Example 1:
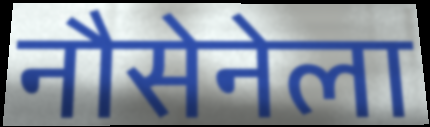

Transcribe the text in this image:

नौसेनेला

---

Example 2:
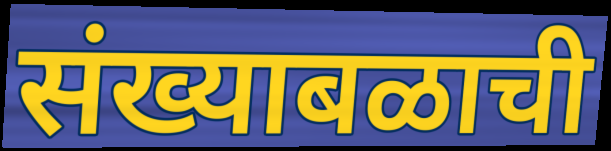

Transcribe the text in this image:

संख्याबळाची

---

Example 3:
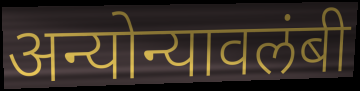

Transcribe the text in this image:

अन्योन्यावलंबी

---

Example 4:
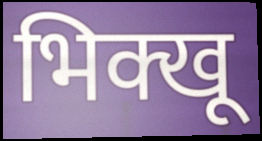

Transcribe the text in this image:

भिक्‍खू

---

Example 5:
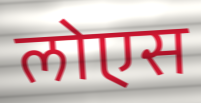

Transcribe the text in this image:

लोएस